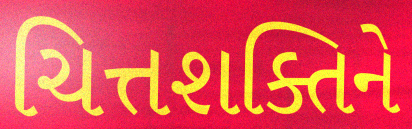
ચિત્તશક્તિને